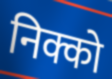
निक्को